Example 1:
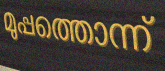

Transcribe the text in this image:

മുപ്പത്തൊന്ന്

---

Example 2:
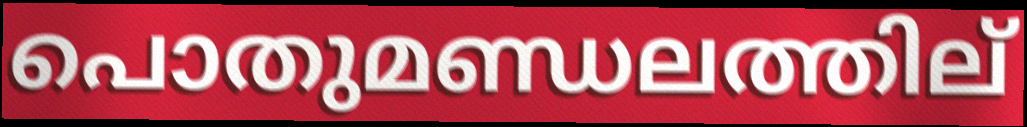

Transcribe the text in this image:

പൊതുമണ്ഡലത്തില്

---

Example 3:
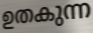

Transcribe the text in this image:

ഉതകുന്ന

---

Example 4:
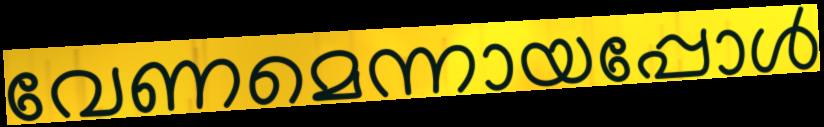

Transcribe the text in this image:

വേണമെന്നായപ്പോൾ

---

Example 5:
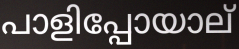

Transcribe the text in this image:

പാളിപ്പോയാല്